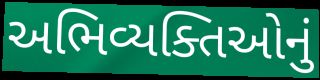
અભિવ્યક્તિઓનું